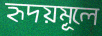
হৃদয়মূলে